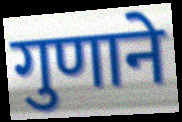
गुणाने